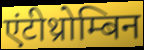
एंटीथ्रोम्बिन